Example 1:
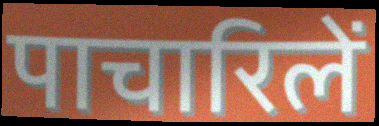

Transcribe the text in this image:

पाचारिलें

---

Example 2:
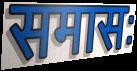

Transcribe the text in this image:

समासः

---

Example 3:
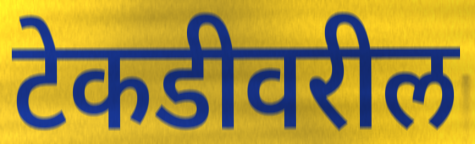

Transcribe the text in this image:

टेकडीवरील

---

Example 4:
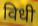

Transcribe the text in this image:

विधी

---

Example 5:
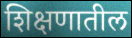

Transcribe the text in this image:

शिक्षणातील